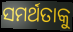
ସମର୍ଥତାକୁ